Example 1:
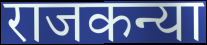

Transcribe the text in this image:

राजकन्या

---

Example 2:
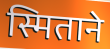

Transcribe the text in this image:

स्मिताने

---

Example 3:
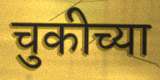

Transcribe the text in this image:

चुकीच्या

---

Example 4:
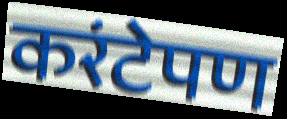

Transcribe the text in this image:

करंटेपण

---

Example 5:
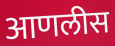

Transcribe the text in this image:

आणलीस